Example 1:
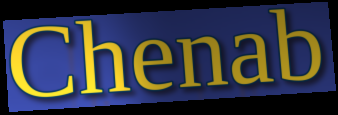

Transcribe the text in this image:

Chenab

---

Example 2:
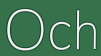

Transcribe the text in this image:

Och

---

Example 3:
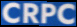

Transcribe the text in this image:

CRPC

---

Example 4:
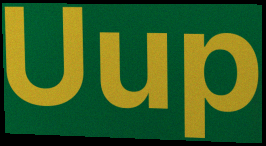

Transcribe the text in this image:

Uup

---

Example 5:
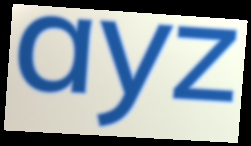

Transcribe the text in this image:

ayz